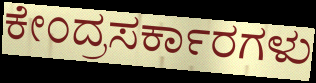
ಕೇಂದ್ರಸರ್ಕಾರಗಳು